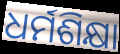
ଧର୍ମଶିକ୍ଷା